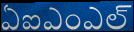
ఏఐఎంఎల్